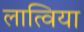
लात्विया